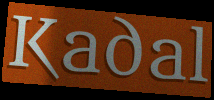
Kadal